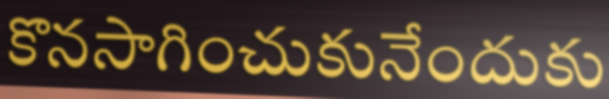
కొనసాగించుకునేందుకు